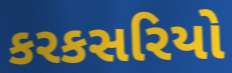
કરકસરિયો